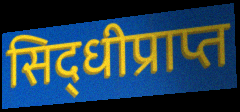
सिद्धीप्राप्त